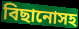
বিছানোসহ